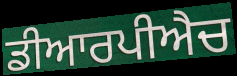
ਡੀਆਰਪੀਐਚ